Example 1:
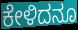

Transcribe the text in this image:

ಕೇಳಿದನೂ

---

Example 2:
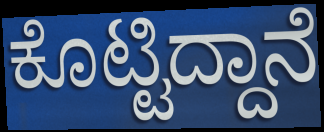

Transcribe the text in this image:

ಕೊಟ್ಟಿದ್ದಾನೆ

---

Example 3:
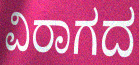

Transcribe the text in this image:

ವಿರಾಗದ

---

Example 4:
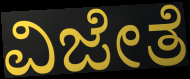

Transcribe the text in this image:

ವಿಜೇತೆ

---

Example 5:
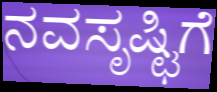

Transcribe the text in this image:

ನವಸೃಷ್ಟಿಗೆ